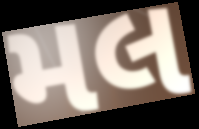
મલ